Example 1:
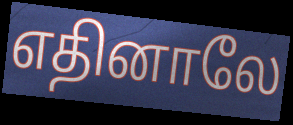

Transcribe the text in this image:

எதினாலே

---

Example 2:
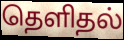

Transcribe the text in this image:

தெளிதல்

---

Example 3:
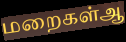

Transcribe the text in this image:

மறைகள்ஆ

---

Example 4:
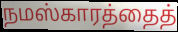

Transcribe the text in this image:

நமஸ்காரத்தைத்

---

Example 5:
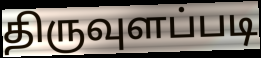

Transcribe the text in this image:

திருவுளப்படி